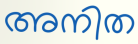
അനിത